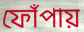
ফোঁপায়